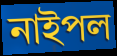
নাইপল